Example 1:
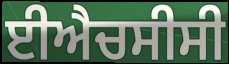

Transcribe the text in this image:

ਈਐਚਸੀਸੀ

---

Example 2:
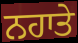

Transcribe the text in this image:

ਨਹਾਤੇ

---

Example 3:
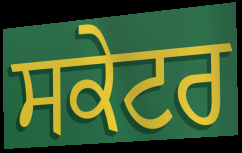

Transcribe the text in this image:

ਸਕੇਟਰ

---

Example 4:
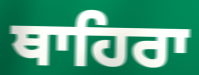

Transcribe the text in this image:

ਥਾਹਿਰਾ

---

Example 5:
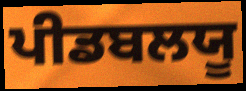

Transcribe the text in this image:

ਪੀਡਬਲਯੂ